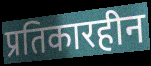
प्रतिकारहीन